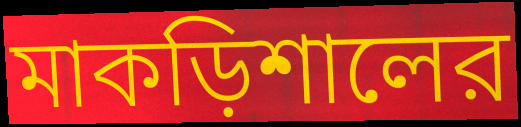
মাকড়িশালের